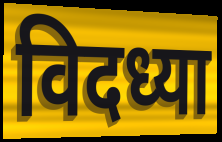
विदध्या